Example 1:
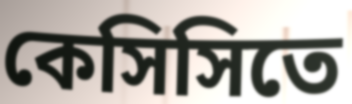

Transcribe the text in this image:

কেসিসিতে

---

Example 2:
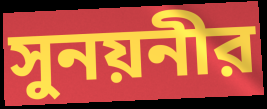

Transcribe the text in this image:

সুনয়নীর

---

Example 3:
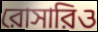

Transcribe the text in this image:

রোসারিও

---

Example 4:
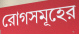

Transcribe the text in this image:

রোগসমূহের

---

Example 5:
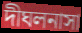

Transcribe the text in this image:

দীঘলনাসা